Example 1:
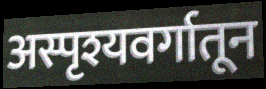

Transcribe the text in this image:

अस्पृश्यवर्गातून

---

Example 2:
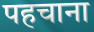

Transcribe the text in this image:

पहचाना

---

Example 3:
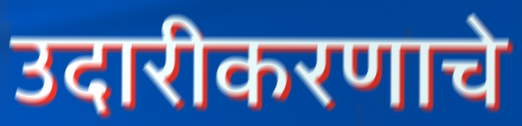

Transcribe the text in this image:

उदारीकरणाचे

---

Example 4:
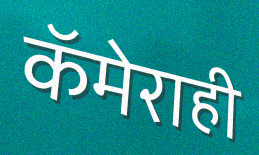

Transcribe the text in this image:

कॅमेराही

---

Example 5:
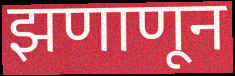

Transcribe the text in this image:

झणाणून